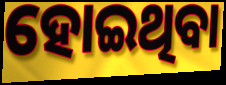
ହୋଇଥିବା